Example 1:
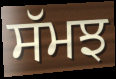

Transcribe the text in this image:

ਸੱਮਝ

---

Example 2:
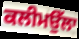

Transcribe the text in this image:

ਕਲੀਮਉੱਲਾ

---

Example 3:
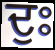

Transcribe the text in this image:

ਦੁਃ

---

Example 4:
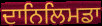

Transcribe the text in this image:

ਦਾਨਿਲਿਮਡਾ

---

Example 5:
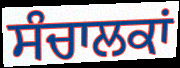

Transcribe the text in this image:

ਸੰਚਾਲਕਾਂ